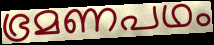
ഭ്രമണപഥം